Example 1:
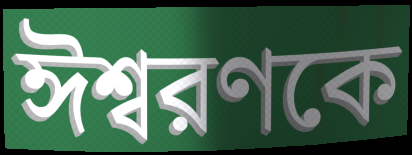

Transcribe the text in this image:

ঈশ্বরণকে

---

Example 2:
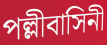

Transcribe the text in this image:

পল্লীবাসিনী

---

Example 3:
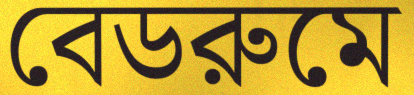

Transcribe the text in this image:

বেডরুমে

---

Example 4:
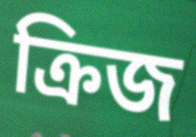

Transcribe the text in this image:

ক্রিজ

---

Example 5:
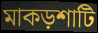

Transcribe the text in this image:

মাকড়শাটি